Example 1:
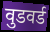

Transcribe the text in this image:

वुडवर्ड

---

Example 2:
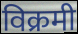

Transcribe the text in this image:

विक्रमी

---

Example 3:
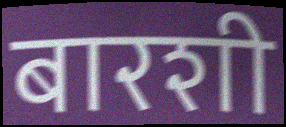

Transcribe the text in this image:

बारशी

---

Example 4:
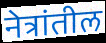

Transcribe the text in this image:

नेत्रांतील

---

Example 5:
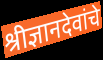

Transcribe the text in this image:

श्रीज्ञानदेवांचे